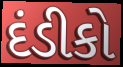
દંડીકો